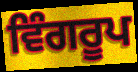
ਵਿੰਗਰੂਪ